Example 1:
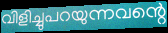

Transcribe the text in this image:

വിളിച്ചുപറയുന്നവന്റെ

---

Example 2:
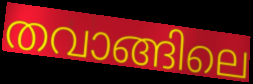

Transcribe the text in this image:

തവാങ്ങിലെ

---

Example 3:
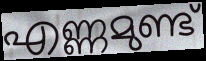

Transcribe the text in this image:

എണ്ണമുണ്ട്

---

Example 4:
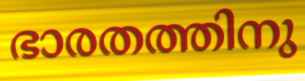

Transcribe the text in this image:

ഭാരതത്തിനു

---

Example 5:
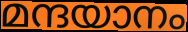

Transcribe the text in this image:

മന്ദയാനം